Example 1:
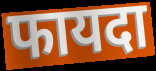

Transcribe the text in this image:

फायदा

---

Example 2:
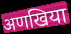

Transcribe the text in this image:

अणखिया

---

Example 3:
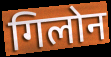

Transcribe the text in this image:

गिलोन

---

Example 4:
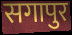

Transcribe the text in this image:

सगापुर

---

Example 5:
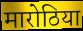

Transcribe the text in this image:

मारोठिया